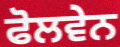
ਫੋਲਵੇਨ